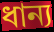
ধান্য